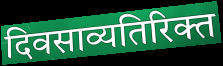
दिवसाव्यतिरिक्त